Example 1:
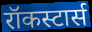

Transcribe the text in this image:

रॉकस्टार्स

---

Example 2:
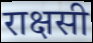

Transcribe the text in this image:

राक्षसी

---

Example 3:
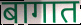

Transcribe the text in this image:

बागात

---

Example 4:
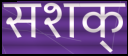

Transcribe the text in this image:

सशक्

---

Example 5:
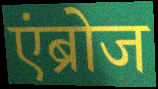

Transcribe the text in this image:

एंब्रोज